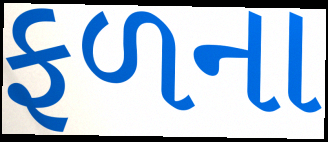
ફળના